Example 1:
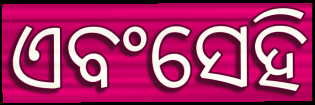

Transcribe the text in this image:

ଏବଂସେହି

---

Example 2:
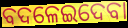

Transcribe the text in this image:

ବଦଳେଇଦେବା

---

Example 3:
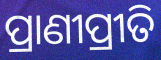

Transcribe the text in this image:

ପ୍ରାଣୀପ୍ରୀତି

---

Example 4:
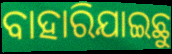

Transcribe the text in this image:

ବାହାରିଯାଇଛୁ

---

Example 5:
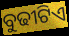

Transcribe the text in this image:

ବୁଢୀଟିଏ